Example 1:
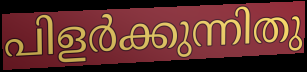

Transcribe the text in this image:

പിളർക്കുന്നിതു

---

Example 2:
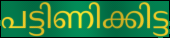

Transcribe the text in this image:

പട്ടിണിക്കിട്ട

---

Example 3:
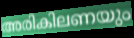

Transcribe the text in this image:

അരികിലണയും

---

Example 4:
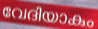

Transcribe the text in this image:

വേദിയാകും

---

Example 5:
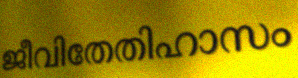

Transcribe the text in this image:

ജീവിതേതിഹാസം